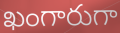
ఖంగారుగా